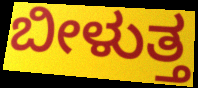
ಬೀಳುತ್ತ